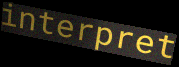
interpret